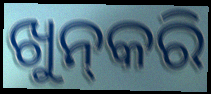
ଖୁନ୍‍କରି